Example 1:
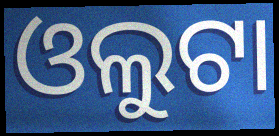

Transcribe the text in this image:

ଓଲୁଟା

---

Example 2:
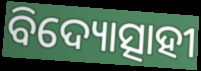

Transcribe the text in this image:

ବିଦ୍ୟୋତ୍ସାହୀ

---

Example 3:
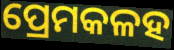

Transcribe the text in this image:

ପ୍ରେମକଳହ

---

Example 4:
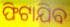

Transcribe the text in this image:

ଫିଟାଯିବ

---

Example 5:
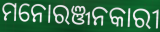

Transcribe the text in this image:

ମନୋରଞ୍ଜନକାରୀ